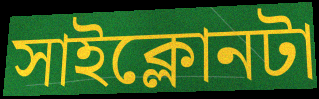
সাইক্লোনটা